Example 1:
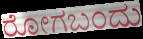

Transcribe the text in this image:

ರೋಗಬಂದು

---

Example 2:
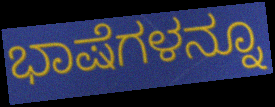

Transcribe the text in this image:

ಭಾಷೆಗಳನ್ನೂ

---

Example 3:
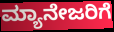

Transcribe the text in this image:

ಮ್ಯಾನೇಜರಿಗೆ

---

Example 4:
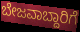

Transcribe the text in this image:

ಬೇಜವಾಬ್ದಾರಿಗೆ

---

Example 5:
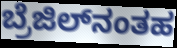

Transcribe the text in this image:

ಬ್ರೆಜಿಲ್‌ನಂತಹ